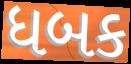
ધબક